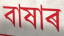
বাষাৰ